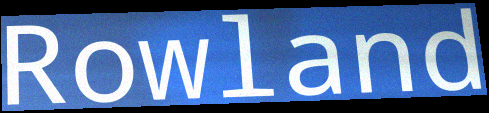
Rowland